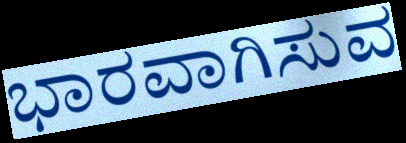
ಭಾರವಾಗಿಸುವ